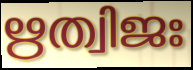
ഋത്വിജഃ